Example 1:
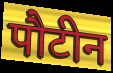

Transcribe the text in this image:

पौटीन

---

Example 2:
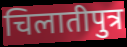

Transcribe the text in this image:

चिलातीपुत्र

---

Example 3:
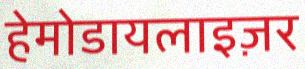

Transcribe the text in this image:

हेमोडायलाइज़र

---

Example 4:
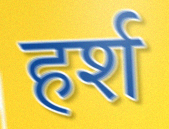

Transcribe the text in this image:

हर्श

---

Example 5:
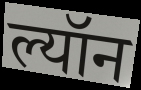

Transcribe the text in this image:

ल्यॉन